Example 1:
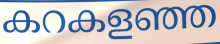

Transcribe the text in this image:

കറകളഞ്ഞ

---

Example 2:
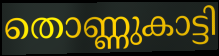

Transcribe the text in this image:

തൊണ്ണുകാട്ടി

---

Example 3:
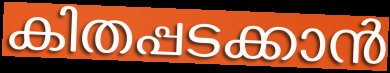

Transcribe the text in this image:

കിതപ്പടക്കാൻ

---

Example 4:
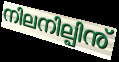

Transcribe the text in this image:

നിലനില്പിനു്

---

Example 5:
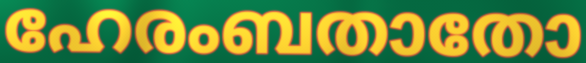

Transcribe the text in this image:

ഹേരംബതാതോ